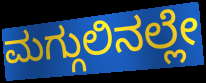
ಮಗ್ಗುಲಿನಲ್ಲೇ